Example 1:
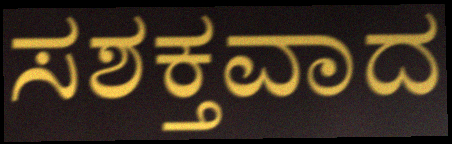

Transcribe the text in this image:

ಸಶಕ್ತವಾದ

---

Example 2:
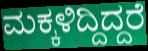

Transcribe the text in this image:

ಮಕ್ಕಳಿದ್ದಿದ್ದರೆ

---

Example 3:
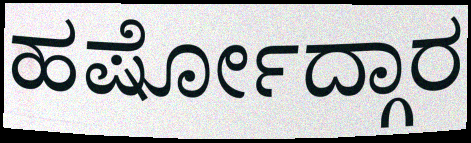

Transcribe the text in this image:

ಹರ್ಷೋದ್ಗಾರ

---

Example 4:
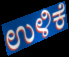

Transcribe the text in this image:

ಉಳಿಕೆ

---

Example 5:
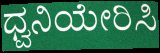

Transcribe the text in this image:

ಧ್ವನಿಯೇರಿಸಿ